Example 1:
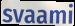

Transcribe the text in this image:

svaami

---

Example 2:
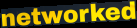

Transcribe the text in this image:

networked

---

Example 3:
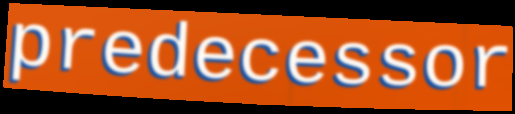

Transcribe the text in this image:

predecessor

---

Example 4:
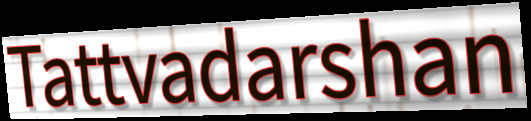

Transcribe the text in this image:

Tattvadarshan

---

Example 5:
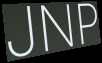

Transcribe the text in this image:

JNP